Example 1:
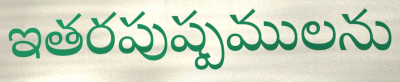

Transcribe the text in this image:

ఇతరపుష్పములను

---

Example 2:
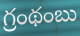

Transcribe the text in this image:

గ్రంథంబు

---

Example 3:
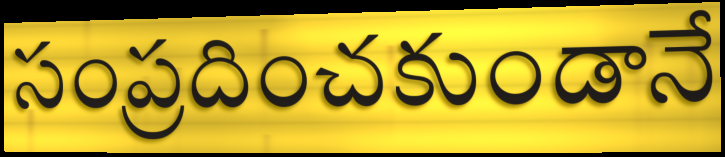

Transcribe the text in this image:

సంప్రదించకుండానే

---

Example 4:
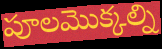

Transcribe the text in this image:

పూలమొక్కల్ని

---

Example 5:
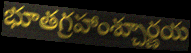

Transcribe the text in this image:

భూతగ్రహాంశ్చూర్ణయ